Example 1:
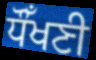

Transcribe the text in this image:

ਧੌਁਖਣੀ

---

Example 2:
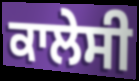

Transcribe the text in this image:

ਕਾਲੇਸੀ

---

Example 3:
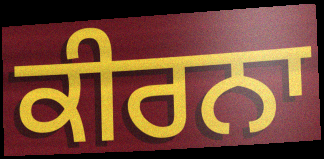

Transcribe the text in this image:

ਕੀਰਨਾ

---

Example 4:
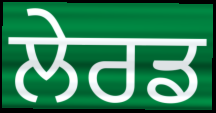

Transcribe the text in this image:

ਲੇਰਡ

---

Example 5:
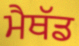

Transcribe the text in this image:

ਮੈਥੱਡ